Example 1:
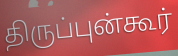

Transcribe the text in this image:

திருப்புன்கூர்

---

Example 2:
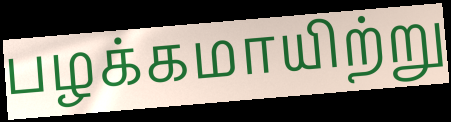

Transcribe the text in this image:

பழக்கமாயிற்று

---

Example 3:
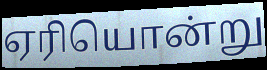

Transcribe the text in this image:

ஏரியொன்று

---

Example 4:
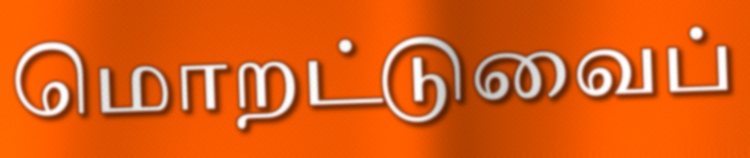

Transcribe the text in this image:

மொறட்டுவைப்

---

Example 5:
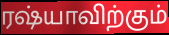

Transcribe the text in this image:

ரஷ்யாவிற்கும்